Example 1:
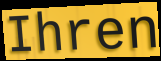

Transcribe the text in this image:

Ihren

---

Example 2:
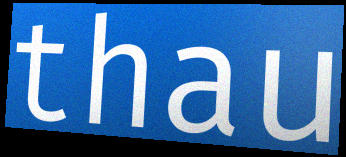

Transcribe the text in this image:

thau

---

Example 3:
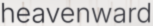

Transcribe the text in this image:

heavenward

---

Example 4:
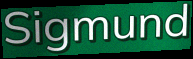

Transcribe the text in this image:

Sigmund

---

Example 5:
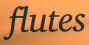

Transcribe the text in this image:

flutes